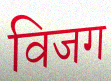
विजग